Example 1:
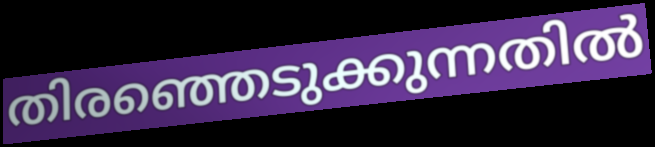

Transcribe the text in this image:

തിരഞ്ഞെടുക്കുന്നതിൽ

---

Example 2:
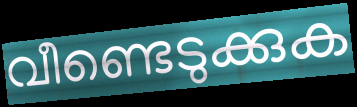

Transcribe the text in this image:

വീണ്ടെടുക്കുക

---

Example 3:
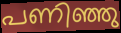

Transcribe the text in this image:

പണിഞ്ഞു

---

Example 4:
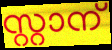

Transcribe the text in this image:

സ്റ്റാന്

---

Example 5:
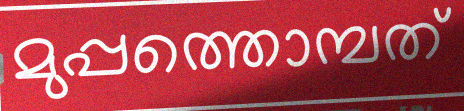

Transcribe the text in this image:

മുപ്പത്തൊമ്പത്